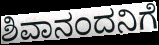
ಶಿವಾನಂದನಿಗೆ